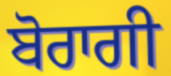
ਬੋਰਾਗੀ